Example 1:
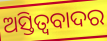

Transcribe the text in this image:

ଅସ୍ତିତ୍ବବାଦର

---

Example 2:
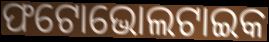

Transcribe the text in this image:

ଫଟୋଭୋଲଟାଇକ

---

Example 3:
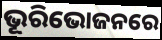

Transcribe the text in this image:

ଭୂରିଭୋଜନରେ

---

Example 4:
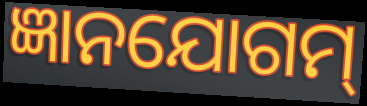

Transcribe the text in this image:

ଜ୍ଞାନଯୋଗମ୍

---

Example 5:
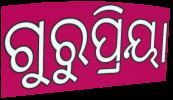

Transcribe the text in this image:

ଗୁରୁପ୍ରିୟା